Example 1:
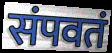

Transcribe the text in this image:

संपवतं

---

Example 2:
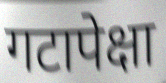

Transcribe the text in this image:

गटापेक्षा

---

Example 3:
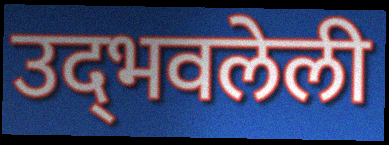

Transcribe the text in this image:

उद्‌भवलेली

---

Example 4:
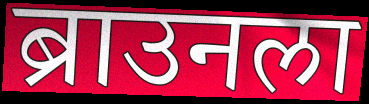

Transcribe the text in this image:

ब्राउनला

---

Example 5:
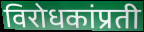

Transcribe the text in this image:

विरोधकांप्रती